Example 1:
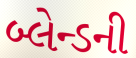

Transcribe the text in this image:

બ્લેન્ડની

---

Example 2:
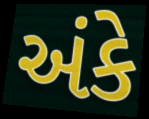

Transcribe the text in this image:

અંકે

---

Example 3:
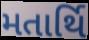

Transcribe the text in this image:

મતાર્થિ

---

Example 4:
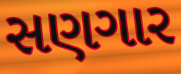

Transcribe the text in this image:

સણગાર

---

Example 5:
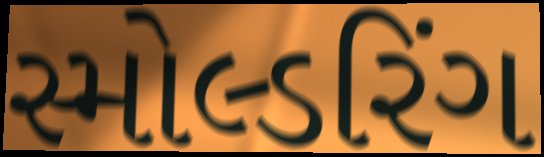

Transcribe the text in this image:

સ્મોલ્ડરિંગ